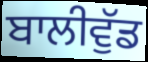
ਬਾਲੀਵੁੱਡ